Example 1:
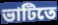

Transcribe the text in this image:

ভাটিতে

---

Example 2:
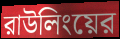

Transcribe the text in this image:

রাউলিংয়ের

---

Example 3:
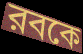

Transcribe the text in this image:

রবকে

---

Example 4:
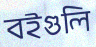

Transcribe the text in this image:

বইগুলি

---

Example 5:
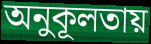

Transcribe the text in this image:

অনুকূলতায়